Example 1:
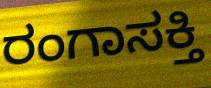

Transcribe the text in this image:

ರಂಗಾಸಕ್ತಿ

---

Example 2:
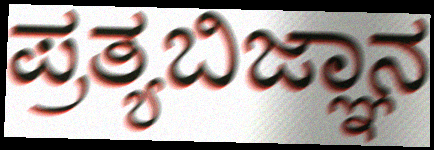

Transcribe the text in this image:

ಪ್ರತ್ಯಬಿಜ್ಞಾನ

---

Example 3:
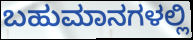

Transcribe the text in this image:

ಬಹುಮಾನಗಳಲ್ಲಿ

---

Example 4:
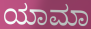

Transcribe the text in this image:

ಯಾಮಾ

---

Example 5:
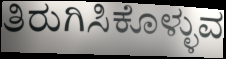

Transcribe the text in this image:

ತಿರುಗಿಸಿಕೊಳ್ಳುವ